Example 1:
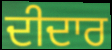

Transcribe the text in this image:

ਦੀਦਾਰ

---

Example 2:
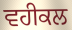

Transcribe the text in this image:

ਵਹੀਕਲ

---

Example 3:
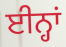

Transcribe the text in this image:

ਈਨ੍ਹਾਂ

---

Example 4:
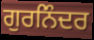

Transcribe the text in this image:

ਗੁਰਨਿੰਦਰ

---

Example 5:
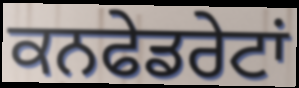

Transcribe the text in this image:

ਕਨਫੇਡਰੇਟਾਂ